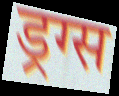
ड्रग्स